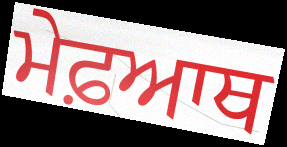
ਮੇਫ਼ਆਥ